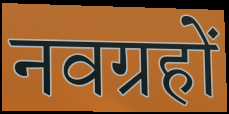
नवग्रहों